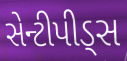
સેન્ટીપીડ્સ